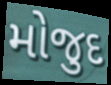
મોજુદ